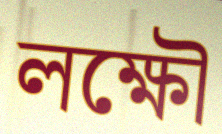
লক্ষৌ